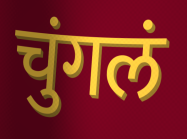
चुंगलं